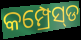
କମ୍ପ୍ରେସ୍‌ଡ